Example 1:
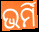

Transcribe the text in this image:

ଭର୍ମି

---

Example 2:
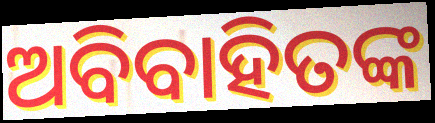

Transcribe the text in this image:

ଅବିବାହିତଙ୍କ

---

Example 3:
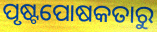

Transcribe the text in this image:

ପୃଷ୍ଟପୋଷକତାରୁ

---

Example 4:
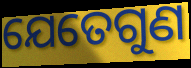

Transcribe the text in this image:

ଯେତେଗୁଣ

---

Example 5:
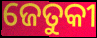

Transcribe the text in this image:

ଜେତୁକୀ